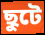
ছুটে